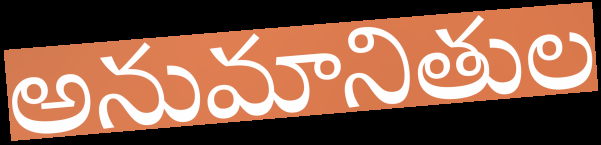
అనుమానితుల